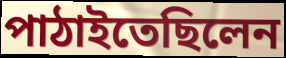
পাঠাইতেছিলেন